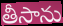
తీసాను